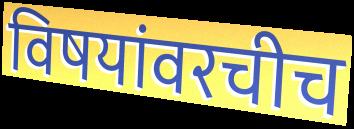
विषयांवरचीच